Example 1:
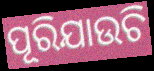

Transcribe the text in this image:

ପୂରିଯାଉଚି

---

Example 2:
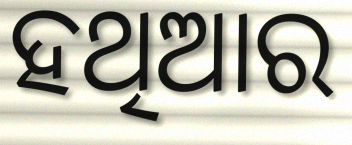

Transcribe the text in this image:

ହଥିଆର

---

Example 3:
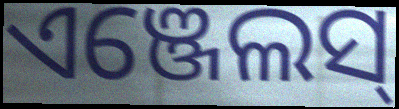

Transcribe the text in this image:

ଏଞ୍ଜେଲସ୍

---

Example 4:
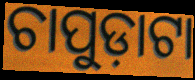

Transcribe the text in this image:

ଚାପୁଡ଼ାଟା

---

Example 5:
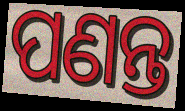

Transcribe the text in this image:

ପଣନ୍ତ